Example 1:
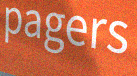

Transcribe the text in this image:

pagers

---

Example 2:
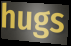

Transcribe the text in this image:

hugs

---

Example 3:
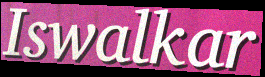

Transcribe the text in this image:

Iswalkar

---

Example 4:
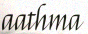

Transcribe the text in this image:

aathma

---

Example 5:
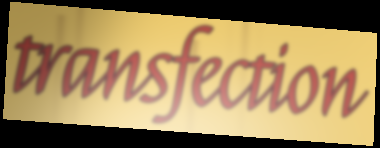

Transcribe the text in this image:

transfection